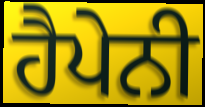
ਹੈਪੇਨੀ